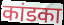
कांडका